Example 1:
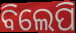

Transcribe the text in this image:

ବିଲେପି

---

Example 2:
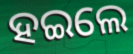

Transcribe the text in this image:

ହଇଲେ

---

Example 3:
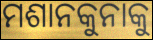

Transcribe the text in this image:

ମଶାନକୁନାକୁ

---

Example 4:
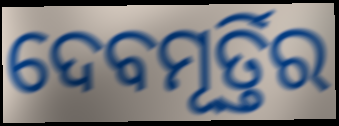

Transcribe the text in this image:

ଦେବମୂର୍ତ୍ତିର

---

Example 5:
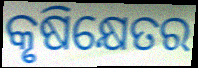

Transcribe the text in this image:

କୃଷିକ୍ଷେତର